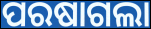
ପରଷାଗଲା